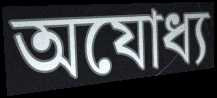
অযোধ্য